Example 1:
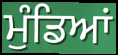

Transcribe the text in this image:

ਮੁੰਡਿਆਂ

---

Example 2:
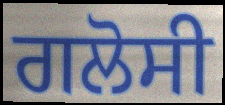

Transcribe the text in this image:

ਗਲੋਸੀ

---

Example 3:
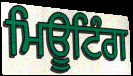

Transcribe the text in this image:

ਮਿਊਟਿੰਗ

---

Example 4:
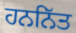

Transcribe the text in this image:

ਹਨਨਿੱਤ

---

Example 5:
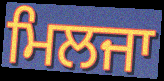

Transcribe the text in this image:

ਮਿਲਜਾ